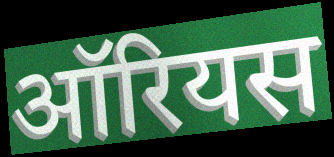
ऑरियस